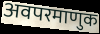
अवपरमाणुक